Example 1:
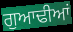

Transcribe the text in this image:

ਗੁਆਢੀਆਂ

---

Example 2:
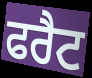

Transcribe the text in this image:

ਫਰੈਟ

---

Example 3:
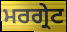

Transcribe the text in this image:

ਮਰਗ੍ਰੇਟ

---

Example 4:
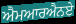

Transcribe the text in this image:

ਐਮਆਰਐਨਏ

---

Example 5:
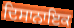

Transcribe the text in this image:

ਦਿਸਾਨਾਇਕ